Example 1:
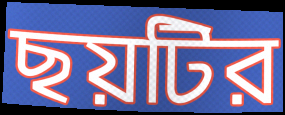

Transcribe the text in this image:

ছয়টির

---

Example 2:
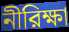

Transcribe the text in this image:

নীরিক্ষা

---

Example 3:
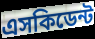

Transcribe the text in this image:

এসকিডেন্ট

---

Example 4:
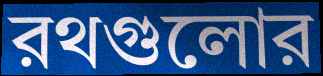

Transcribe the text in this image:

রথগুলোর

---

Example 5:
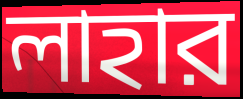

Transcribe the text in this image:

লাহার